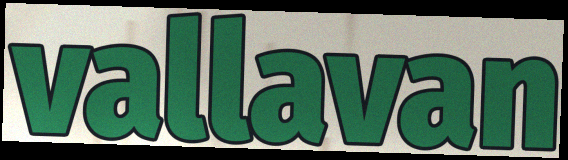
vallavan